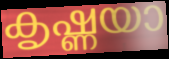
കൃഷ്ണയാ